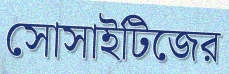
সোসাইটিজের